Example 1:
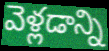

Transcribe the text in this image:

వెళ్లడాన్ని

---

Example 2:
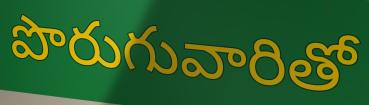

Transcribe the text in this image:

పొరుగువారితో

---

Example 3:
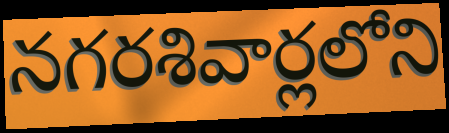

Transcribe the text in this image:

నగరశివార్లలోని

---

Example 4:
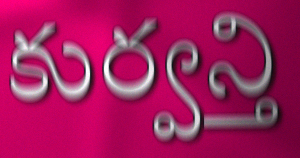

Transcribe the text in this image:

కుర్వన్తి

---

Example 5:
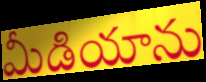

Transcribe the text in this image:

మీడియాను